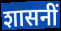
शासनीं